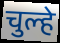
चुल्हे